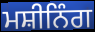
ਮਸ਼ੀਨਿੰਗ